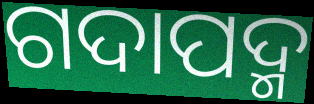
ଗଦାପଦ୍ମ